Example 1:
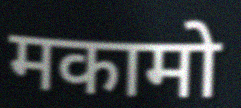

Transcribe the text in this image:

मकामो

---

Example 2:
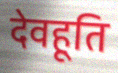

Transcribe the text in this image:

देवहूति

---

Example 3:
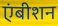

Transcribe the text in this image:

एंबीशन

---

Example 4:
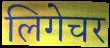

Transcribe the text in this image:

लिगेचर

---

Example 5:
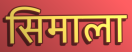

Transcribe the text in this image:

सिमाला